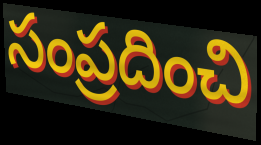
సంప్రదించి